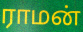
ராமன்